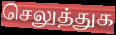
செலுத்துக